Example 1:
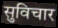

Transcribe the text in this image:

सुविचार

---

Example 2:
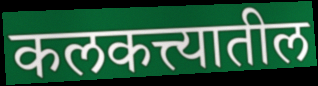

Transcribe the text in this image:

कलकत्त्यातील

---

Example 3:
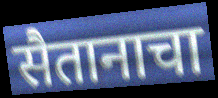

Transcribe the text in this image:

सैतानाचा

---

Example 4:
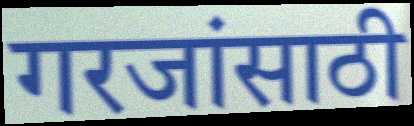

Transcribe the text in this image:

गरजांसाठी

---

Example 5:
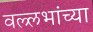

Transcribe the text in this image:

वल्लभांच्या